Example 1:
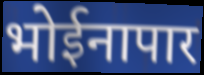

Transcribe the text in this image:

भोईनापार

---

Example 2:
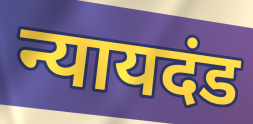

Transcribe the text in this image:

न्यायदंड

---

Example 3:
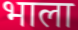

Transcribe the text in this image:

भाला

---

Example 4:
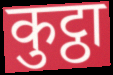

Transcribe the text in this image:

कुट्ठा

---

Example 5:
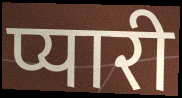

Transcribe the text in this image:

प्यारी